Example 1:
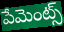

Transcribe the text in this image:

పేమెంట్స్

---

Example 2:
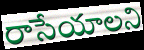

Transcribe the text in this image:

రాసేయాలని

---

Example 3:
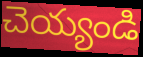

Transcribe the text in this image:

చెయ్యండి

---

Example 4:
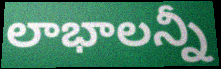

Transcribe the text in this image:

లాభాలన్నీ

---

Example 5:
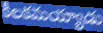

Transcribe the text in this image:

కీలకమయ్యాడు